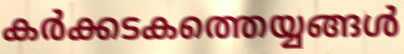
കർക്കടകത്തെയ്യങ്ങൾ